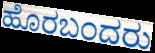
ಹೊರಬಂದರು